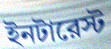
ইনটারেস্ট